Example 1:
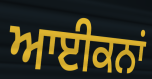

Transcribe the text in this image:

ਆਈਕਨਾਂ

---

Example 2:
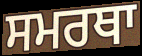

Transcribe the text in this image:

ਸਮਰਥਾ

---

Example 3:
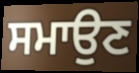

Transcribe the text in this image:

ਸਮਾਉਣ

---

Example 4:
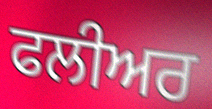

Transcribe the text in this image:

ਫਲੀਅਰ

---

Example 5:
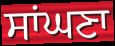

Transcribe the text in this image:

ਸਾਂਘਣਾ